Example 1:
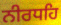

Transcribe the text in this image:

ਨੀਰਧਹਿ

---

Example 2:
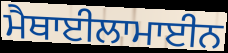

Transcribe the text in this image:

ਮੈਥਾਈਲਾਮਾਈਨ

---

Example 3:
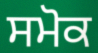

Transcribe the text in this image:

ਸਮੋਕ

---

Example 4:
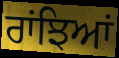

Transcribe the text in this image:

ਰਾਂਝਿਆਂ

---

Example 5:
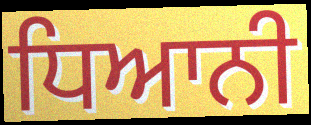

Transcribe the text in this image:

ਧਿਆਨੀ